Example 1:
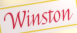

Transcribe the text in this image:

Winston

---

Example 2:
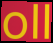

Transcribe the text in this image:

oll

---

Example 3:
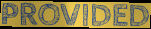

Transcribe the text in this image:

PROVIDED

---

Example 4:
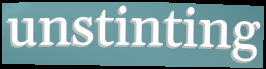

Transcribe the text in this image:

unstinting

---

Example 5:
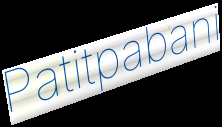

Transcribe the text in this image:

Patitpabani